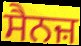
ਸੈਨਜ਼